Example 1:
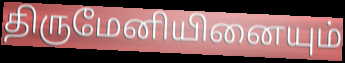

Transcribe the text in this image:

திருமேனியினையும்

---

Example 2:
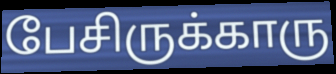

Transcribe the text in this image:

பேசிருக்காரு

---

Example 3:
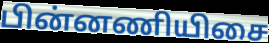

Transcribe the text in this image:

பின்னணியிசை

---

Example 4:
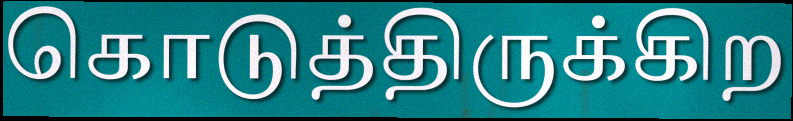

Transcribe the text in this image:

கொடுத்திருக்கிற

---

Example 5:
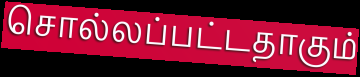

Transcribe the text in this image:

சொல்லப்பட்டதாகும்